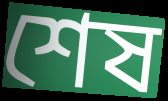
শেষ